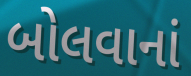
બોલવાનાં